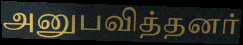
அனுபவித்தனர்